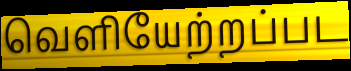
வெளியேற்றப்பட